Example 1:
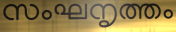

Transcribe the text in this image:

സംഘനൃത്തം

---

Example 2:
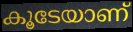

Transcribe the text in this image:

കൂടേയാണ്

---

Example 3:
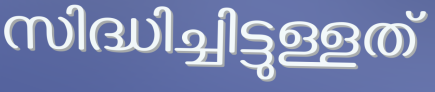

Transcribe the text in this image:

സിദ്ധിച്ചിട്ടുള്ളത്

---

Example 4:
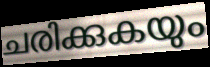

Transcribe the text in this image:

ചരിക്കുകയും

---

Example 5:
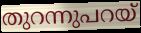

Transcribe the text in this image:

തുറന്നുപറയ്